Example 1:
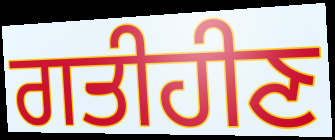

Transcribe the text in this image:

ਗਤੀਹੀਣ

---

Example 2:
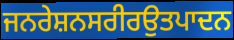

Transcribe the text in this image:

ਜਨਰੇਸ਼ਨਸਰੀਰਉਤਪਾਦਨ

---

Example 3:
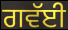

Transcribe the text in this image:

ਗਵੱਈ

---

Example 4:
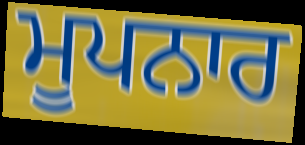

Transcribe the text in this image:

ਮੂਪਨਾਰ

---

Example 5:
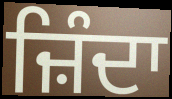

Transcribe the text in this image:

ਜ਼ਿੰਦਾ